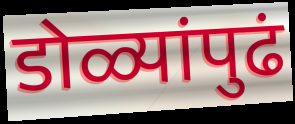
डोळ्यांपुढं